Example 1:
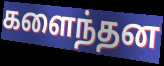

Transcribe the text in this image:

களைந்தன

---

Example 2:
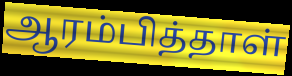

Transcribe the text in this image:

ஆரம்பித்தாள்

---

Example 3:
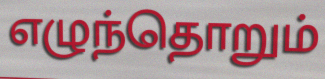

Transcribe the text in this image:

எழுந்தொறும்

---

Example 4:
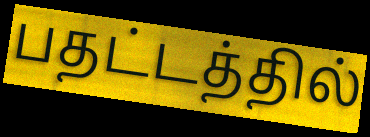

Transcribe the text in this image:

பதட்டத்தில்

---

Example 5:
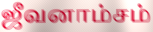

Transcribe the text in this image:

ஜீவனாம்சம்